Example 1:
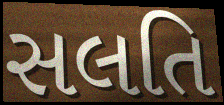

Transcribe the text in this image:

સલતિ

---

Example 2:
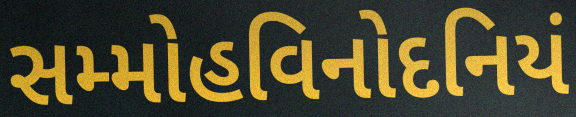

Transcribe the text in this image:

સમ્મોહવિનોદનિયં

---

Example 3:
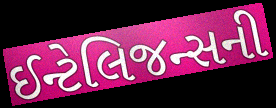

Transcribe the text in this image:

ઈન્ટેલિજન્સની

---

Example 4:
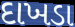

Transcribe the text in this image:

દાખડા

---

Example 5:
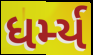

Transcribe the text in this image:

ધર્મ્ય